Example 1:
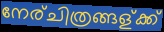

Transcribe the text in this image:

നേര്ചിത്രങ്ങള്ക്ക്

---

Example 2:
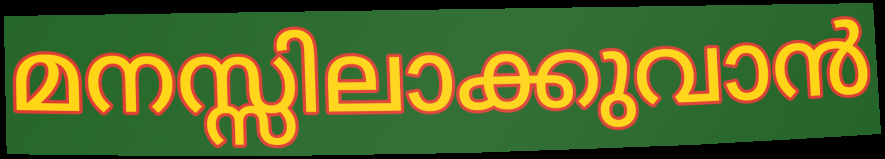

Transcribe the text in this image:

മനസ്സിലാക്കുവാൻ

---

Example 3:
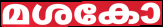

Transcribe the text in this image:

മശകോ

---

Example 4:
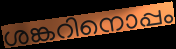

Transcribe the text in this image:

ശങ്കറിനൊപ്പം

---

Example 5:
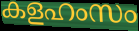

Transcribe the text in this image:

കളഹംസം